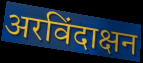
अरविंदाक्षन